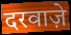
दरवाज़े